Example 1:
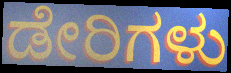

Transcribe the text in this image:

ಡೇರಿಗಳು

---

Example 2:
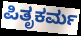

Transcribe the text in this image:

ಪಿತೃಕರ್ಮ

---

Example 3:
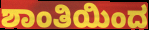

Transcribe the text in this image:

ಶಾಂತಿಯಿಂದ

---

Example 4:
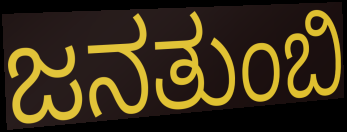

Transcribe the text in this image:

ಜನತುಂಬಿ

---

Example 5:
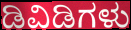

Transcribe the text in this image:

ಡಿವಿಡಿಗಳು